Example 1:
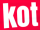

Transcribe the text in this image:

kot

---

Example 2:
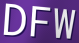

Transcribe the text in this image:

DFW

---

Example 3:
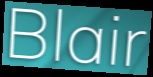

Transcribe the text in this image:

Blair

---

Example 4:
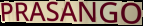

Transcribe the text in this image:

PRASANGO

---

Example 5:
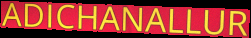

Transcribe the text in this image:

ADICHANALLUR